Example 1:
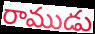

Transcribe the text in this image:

రాముడు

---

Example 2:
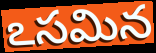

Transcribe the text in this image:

ఽసమిన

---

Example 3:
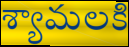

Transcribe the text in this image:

శ్యామలకి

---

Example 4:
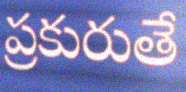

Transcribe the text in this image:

ప్రకురుతే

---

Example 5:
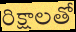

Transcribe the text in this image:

రిక్షాలతో